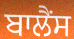
ਬਾਲੈਂਸ